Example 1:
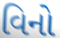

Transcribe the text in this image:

વિનો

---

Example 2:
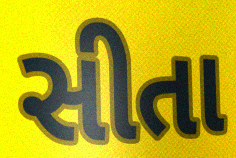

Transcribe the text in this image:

સીતા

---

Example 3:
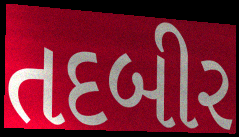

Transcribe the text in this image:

તદબીર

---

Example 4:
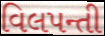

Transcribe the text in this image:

વિલપન્તી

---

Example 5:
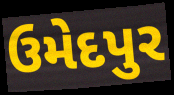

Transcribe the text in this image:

ઉમેદપુર